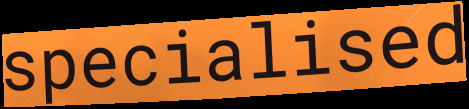
specialised